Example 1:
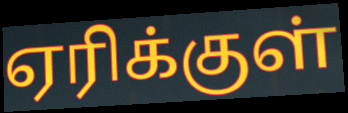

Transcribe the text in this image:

ஏரிக்குள்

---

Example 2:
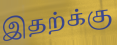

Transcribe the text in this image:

இதற்க்கு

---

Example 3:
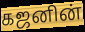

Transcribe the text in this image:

கஜனின்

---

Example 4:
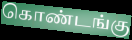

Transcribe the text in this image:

கொண்டங்கு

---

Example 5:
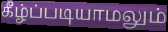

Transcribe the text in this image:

கீழ்ப்படியாமலும்